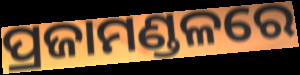
ପ୍ରଜାମଣ୍ଡଳରେ